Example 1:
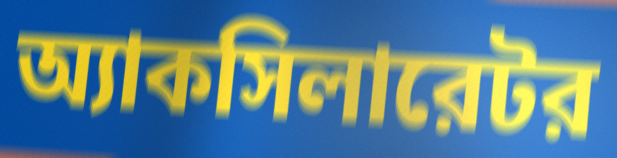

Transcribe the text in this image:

অ্যাকসিলারেটর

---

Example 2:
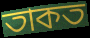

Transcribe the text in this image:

তাকত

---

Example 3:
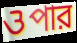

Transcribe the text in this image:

ওপার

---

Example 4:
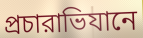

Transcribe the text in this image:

প্রচারাভিযানে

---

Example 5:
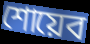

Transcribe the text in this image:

শোয়েব